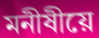
মনীষীয়ে